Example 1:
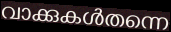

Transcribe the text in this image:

വാക്കുകൾതന്നെ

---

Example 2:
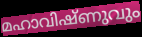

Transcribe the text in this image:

മഹാവിഷ്ണുവും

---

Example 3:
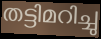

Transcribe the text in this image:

തട്ടിമറിച്ചു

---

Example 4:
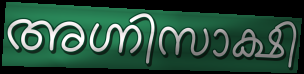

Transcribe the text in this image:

അഗ്നിസാക്ഷി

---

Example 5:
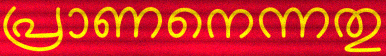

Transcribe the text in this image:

പ്രാണനെന്നതു